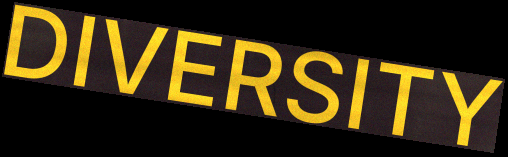
DIVERSITY